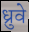
ध्रुवे